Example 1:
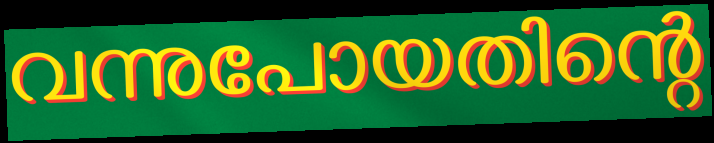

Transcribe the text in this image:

വന്നുപോയതിന്റെ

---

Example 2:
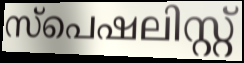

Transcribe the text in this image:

സ്പെഷലിസ്റ്റ്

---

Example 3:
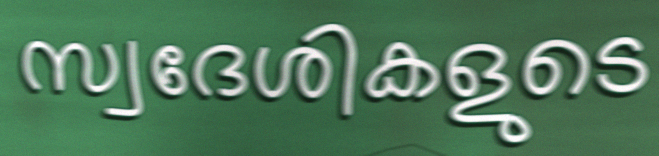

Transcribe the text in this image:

സ്വദേശികളുടെ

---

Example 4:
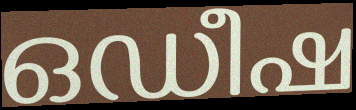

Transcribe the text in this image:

ഒഡീഷ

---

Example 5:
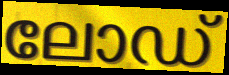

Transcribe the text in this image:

ലോഡ്